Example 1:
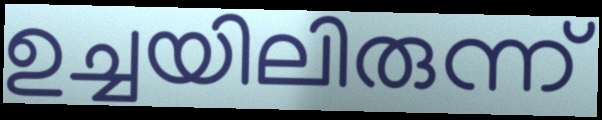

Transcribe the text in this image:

ഉച്ചയിലിരുന്ന്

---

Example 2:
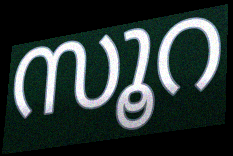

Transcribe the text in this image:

സൂറ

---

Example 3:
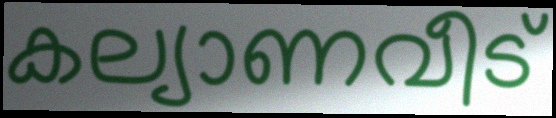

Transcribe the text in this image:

കല്യാണവീട്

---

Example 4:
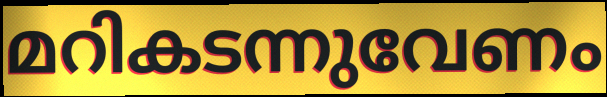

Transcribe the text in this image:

മറികടന്നുവേണം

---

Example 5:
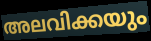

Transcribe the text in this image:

അലവിക്കയും